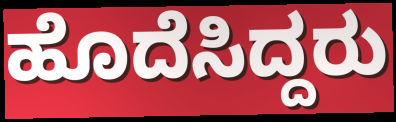
ಹೊದೆಸಿದ್ದರು